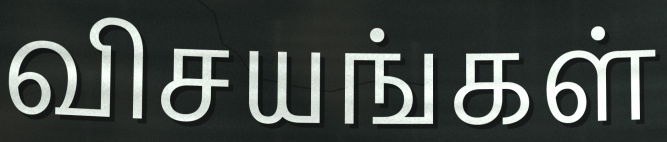
விசயங்கள்